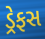
ડ્રેફસ